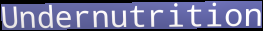
Undernutrition